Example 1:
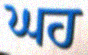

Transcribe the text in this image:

ਘਹ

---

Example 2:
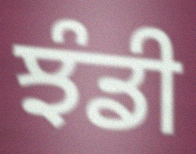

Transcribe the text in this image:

ਝੰਡੀ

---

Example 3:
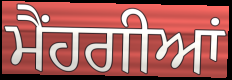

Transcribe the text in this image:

ਮੈਂਹਗੀਆਂ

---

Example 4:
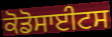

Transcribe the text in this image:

ਕੋਡੋਸਾਈਟਸ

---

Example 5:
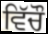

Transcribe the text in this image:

ਵਿੱਚੌ